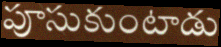
పూసుకుంటాడు